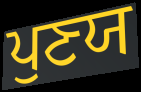
ਪੁਣਯ